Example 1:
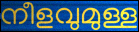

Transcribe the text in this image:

നീളവുമുള്ള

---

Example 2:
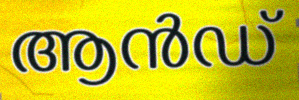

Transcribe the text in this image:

ആൻഡ്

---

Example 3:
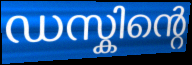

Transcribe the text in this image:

ഡസ്കിന്റെ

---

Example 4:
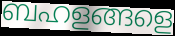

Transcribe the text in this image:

ബഹളങ്ങളെ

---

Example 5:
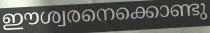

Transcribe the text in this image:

ഈശ്വരനെക്കൊണ്ടു